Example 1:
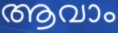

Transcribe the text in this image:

ആവാം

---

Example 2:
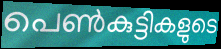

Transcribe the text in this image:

പെൺകുട്ടികളുടെ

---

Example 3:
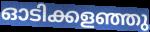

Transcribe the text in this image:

ഓടിക്കളഞ്ഞു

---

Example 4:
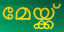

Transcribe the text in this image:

മേയ്ക്ക്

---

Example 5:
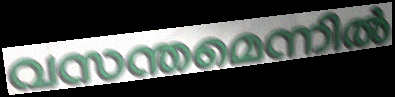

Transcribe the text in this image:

വസന്തമെന്നിൽ